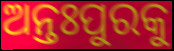
ଅନ୍ତଃପୁରକୁ